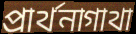
প্রার্থনাগাথা